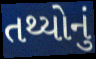
તથ્યોનું